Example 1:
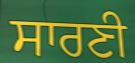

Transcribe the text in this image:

ਸਾਰਣੀ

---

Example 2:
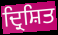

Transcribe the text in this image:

ਦ੍ਰਿਸ਼ਿਤ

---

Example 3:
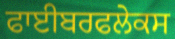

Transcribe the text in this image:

ਫਾਈਬਰਫਲੇਕਸ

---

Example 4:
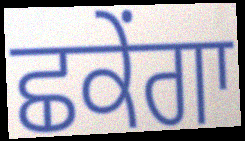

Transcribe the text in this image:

ਛਕੇਂਗਾ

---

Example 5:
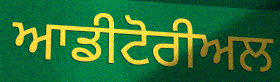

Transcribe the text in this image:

ਆਡੀਟੋਰੀਅਲ